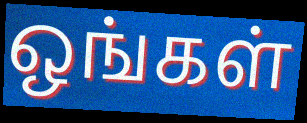
ஒங்கள்